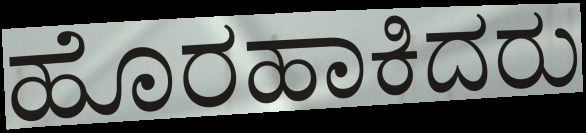
ಹೊರಹಾಕಿದರು